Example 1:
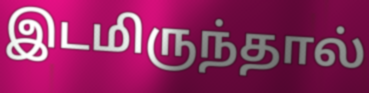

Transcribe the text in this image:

இடமிருந்தால்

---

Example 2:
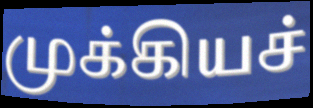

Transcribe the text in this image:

முக்கியச்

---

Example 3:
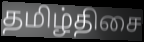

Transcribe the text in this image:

தமிழ்திசை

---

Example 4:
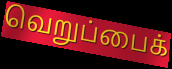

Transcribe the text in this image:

வெறுப்பைக்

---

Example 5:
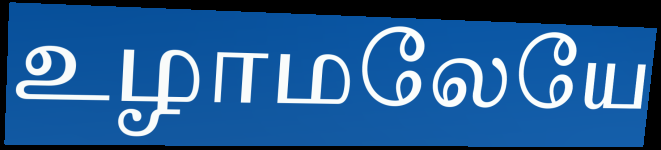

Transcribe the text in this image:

உழாமலேயே